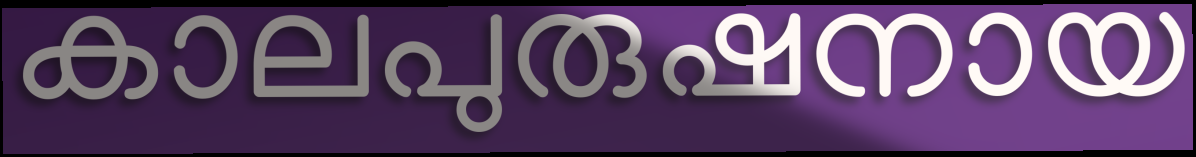
കാലപുരുഷനായ